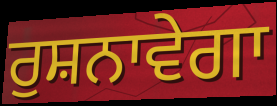
ਰੁਸ਼ਨਾਵੇਗਾ